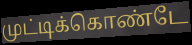
முட்டிக்கொண்டே